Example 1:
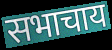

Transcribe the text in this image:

सभाचाय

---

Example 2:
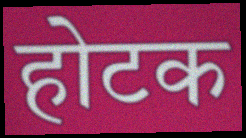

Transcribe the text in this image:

होटक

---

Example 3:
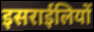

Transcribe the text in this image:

इसराईलियों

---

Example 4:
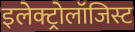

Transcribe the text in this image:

इलेक्ट्रोलॉजिस्ट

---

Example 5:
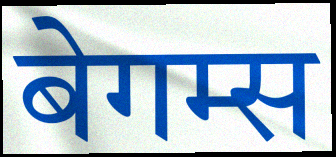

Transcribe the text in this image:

बेगम्स